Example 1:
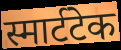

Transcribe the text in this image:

स्मार्टटेक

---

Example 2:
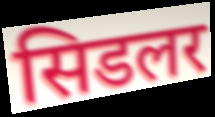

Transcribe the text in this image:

सिडलर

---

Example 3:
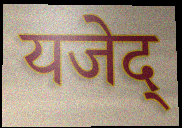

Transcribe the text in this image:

यजेद्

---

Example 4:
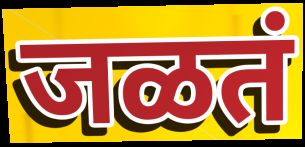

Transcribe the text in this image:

जळतं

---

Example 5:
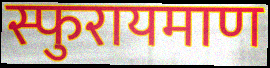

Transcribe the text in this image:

स्फुरायमाण